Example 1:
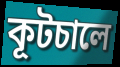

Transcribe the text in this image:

কূটচালে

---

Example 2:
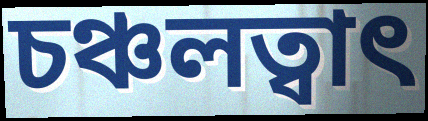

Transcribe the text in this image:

চঞ্চলত্বাৎ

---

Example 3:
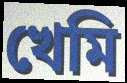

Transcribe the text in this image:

খেমি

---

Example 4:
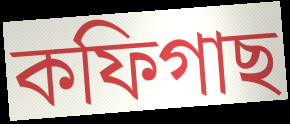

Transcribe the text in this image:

কফিগাছ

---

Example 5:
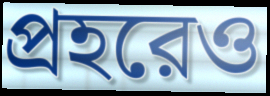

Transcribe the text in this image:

প্রহরেও